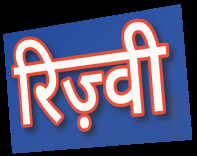
रिज़्वी